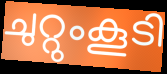
ചുറ്റുംകൂടി